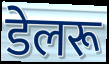
डेलरू